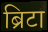
ब्रिटा